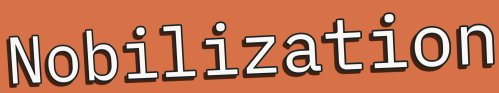
Nobilization